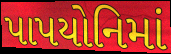
પાપયોનિમાં